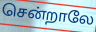
சென்றாலே